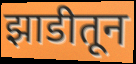
झाडीतून